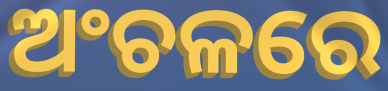
ଅଂଚଳରେ